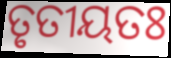
ତୃତୀୟତଃ